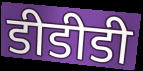
डीडीडी